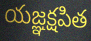
యజ్ఞక్షపిత